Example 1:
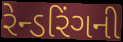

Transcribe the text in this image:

રેન્ડરિંગની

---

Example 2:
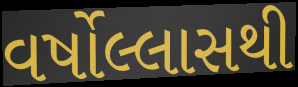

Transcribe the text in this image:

વર્ષોલ્લાસથી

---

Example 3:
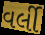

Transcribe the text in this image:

વર્લી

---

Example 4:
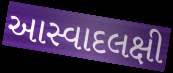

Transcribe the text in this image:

આસ્વાદલક્ષી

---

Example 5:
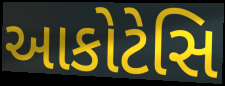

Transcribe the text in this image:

આકોટેસિ